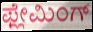
ಫ್ಲೇಮಿಂಗ್